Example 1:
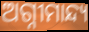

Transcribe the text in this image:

ଅଗ୍ନୀମାନ୍ଦ୍ୟ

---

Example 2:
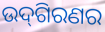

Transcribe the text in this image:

ଉଦ୍‌ଗିରଣର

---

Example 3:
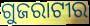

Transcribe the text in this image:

ଗୁଜରାଟୀର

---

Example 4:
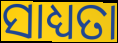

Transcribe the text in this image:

ସାଧ୍ୟତା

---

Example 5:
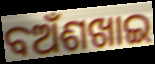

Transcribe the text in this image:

ବଅଁଶଖାଇ